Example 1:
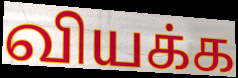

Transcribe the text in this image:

வியக்க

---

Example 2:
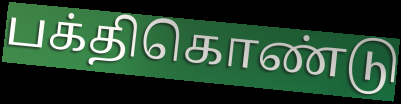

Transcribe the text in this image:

பக்திகொண்டு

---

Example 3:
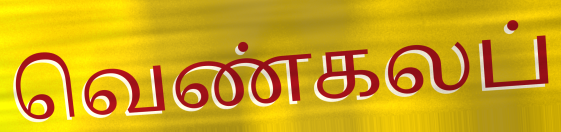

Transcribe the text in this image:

வெண்கலப்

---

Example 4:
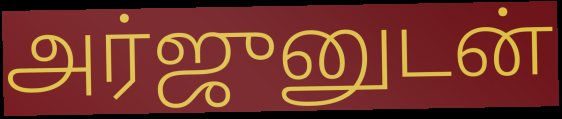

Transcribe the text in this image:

அர்ஜுனுடன்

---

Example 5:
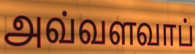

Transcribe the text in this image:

அவ்வளவாப்